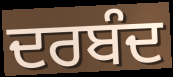
ਦਰਬੰਦ